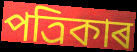
পত্ৰিকাৰ